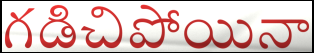
గడిచిపోయినా